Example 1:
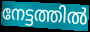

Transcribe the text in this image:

നേട്ടത്തിൽ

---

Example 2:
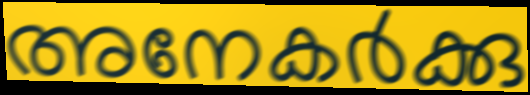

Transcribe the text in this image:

അനേകർക്കു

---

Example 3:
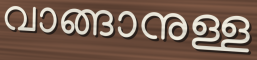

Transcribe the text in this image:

വാങ്ങാനുള്ള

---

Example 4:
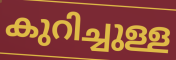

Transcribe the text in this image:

കുറിച്ചുള്ള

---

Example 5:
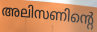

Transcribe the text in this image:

അലിസണിന്റെ